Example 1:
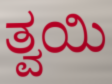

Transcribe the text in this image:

ತ್ವಯಿ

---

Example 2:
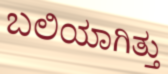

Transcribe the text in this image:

ಬಲಿಯಾಗಿತ್ತು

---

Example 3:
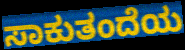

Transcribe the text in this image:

ಸಾಕುತಂದೆಯ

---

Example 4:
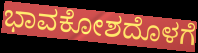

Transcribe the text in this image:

ಭಾವಕೋಶದೊಳಗೆ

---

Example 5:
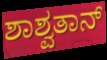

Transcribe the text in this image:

ಶಾಶ್ವತಾನ್